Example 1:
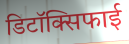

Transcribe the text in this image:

डिटॉक्सिफाई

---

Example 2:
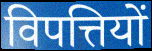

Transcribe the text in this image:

विपत्तियों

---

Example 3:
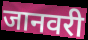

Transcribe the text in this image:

जानवरी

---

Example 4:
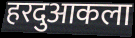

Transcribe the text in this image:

हरदुआकला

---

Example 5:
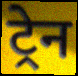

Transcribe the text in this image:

ट्र्रेन